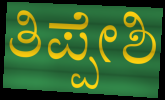
ತಿಪ್ಪೇಶಿ